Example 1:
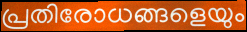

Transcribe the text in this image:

പ്രതിരോധങ്ങളെയും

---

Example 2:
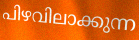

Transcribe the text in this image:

പിഴവിലാക്കുന്ന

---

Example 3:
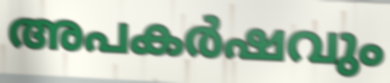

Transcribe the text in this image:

അപകർഷവും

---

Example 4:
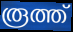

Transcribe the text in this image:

രൂത്ത്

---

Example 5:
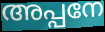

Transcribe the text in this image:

അപ്പനേ